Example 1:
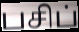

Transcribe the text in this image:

பசிப்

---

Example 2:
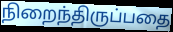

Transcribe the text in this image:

நிறைந்திருப்பதை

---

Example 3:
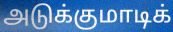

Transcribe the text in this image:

அடுக்குமாடிக்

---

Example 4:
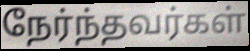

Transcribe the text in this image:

நேர்ந்தவர்கள்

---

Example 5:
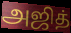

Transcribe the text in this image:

அஜித்